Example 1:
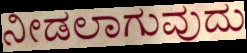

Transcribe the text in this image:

ನೀಡಲಾಗುವುದು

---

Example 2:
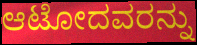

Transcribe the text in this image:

ಆಟೋದವರನ್ನು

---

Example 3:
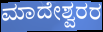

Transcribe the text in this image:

ಮಾದೇಶ್ವರರ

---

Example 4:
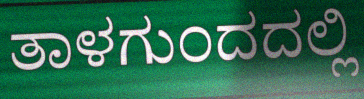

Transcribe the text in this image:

ತಾಳಗುಂದದಲ್ಲಿ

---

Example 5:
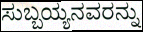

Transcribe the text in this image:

ಸುಬ್ಬಯ್ಯನವರನ್ನು